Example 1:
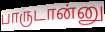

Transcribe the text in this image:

பாருடான்னு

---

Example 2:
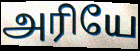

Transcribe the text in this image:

அரியே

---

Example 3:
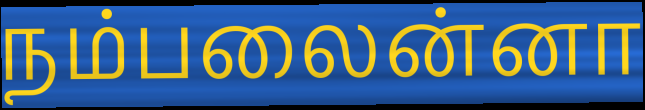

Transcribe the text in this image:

நம்பலைன்னா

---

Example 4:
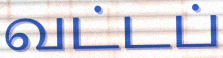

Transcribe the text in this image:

வட்டப்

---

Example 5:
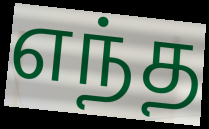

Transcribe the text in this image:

எந்த